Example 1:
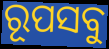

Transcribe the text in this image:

ରୂପସବୁ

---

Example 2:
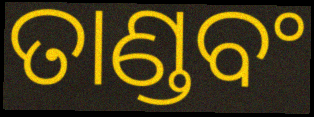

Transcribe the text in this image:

ତାଣ୍ଡବଂ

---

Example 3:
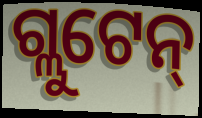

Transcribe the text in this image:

ଗ୍ଲୁଟେନ୍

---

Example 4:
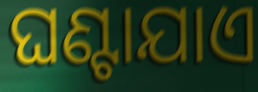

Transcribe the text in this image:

ଘଣ୍ଟାଯାଏ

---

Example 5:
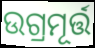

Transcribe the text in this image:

ଉଗ୍ରମୂର୍ତ୍ତ